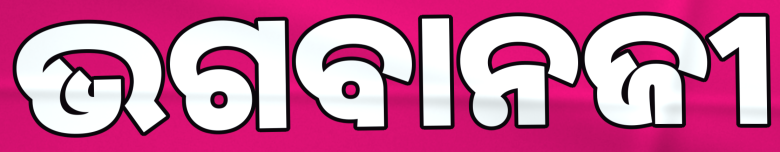
ଭଗବାନଜୀ